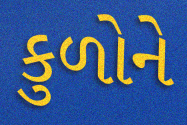
કુળોને